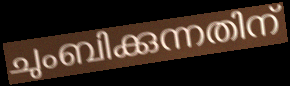
ചുംബിക്കുന്നതിന്